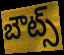
బౌట్స్